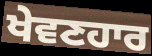
ਖੇਵਣਹਾਰ